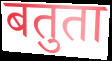
बतुता